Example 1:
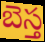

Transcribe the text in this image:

బెస్త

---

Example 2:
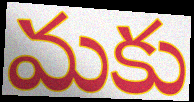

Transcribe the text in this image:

మకు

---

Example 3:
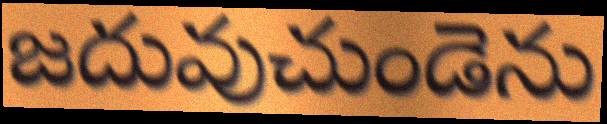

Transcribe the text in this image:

జదువుచుండెను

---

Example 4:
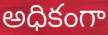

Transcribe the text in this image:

అధికంగా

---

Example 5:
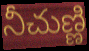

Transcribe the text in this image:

నీచుణ్ణి